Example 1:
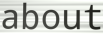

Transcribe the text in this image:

about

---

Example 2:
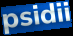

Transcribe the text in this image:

psidii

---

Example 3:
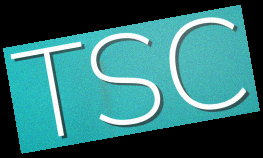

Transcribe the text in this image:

TSC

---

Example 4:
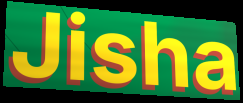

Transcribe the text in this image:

Jisha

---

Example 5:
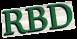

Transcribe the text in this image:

RBD